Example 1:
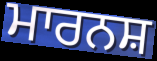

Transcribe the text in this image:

ਮਾਰਨਸ਼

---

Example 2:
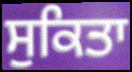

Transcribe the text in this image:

ਸੁਕਿਤਾ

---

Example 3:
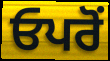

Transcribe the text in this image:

ਓਪਰੋਂ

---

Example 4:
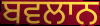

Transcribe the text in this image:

ਬਵਲਾਨ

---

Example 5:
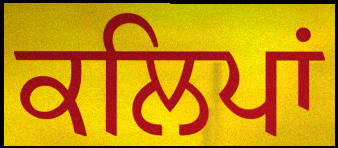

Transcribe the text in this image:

ਕਲਿਪਾਂ